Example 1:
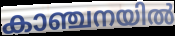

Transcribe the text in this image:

കാഞ്ചനയിൽ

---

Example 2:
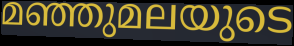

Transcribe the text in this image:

മഞ്ഞുമലയുടെ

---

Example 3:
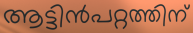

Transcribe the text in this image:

ആട്ടിൻപറ്റത്തിന്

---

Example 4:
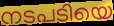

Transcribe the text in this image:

നടപടിയെ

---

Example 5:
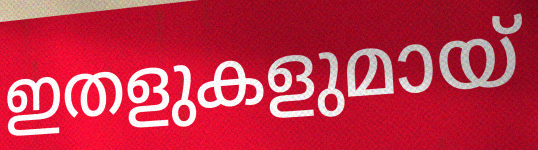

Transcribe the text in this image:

ഇതളുകളുമായ്